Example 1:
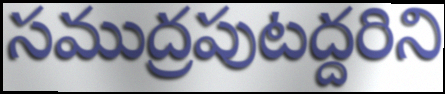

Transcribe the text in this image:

సముద్రపుటద్దరిని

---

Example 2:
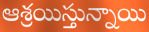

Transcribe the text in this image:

ఆశ్రయిస్తున్నాయి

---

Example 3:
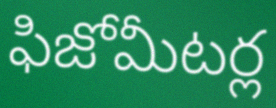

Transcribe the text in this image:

ఫిజోమీటర్ల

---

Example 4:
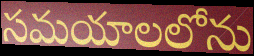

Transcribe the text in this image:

సమయాలలోను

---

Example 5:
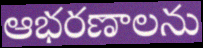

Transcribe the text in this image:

ఆభరణాలను